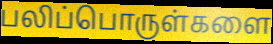
பலிப்பொருள்களை